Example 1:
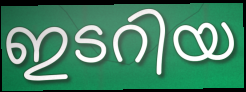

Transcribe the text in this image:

ഇടറിയ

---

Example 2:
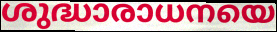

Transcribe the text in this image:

ശുദ്ധാരാധനയെ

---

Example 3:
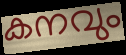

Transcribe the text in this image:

കനവും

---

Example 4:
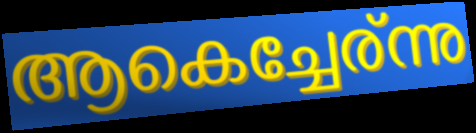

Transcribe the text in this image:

ആകെച്ചേര്ന്നു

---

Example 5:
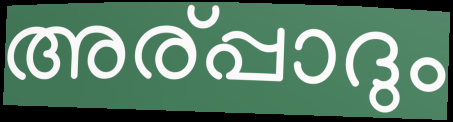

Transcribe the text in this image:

അര്പ്പാദും